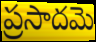
ప్రసాదమె